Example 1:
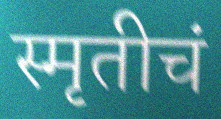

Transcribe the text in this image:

स्मृतीचं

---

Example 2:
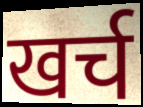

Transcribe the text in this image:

खर्च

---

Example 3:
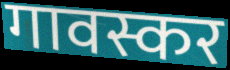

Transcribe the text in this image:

गावस्कर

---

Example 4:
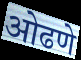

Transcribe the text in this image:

ओढणे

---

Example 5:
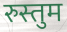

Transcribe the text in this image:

रुस्तुम